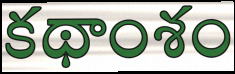
కథాంశం